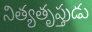
నిత్యతృప్తుడు